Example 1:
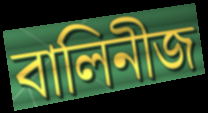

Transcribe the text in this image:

বালিনীজ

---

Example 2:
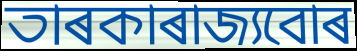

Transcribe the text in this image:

তাৰকাৰাজ্যবোৰ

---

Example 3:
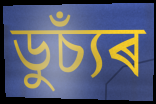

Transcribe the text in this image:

ডুচ্যঁৰ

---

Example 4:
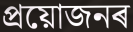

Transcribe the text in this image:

প্ৰয়োজনৰ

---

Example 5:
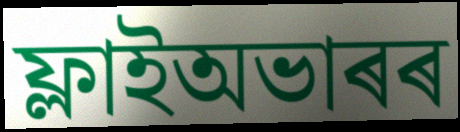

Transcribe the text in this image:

ফ্লাইঅভাৰৰ